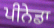
ਪੀਨੇਡਾ